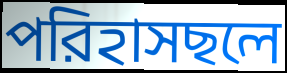
পরিহাসছলে